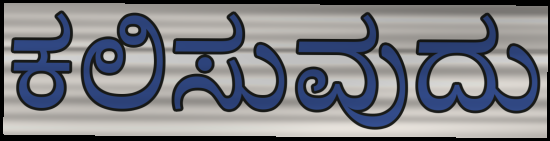
ಕಲಿಸುವುದು